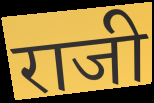
राजी